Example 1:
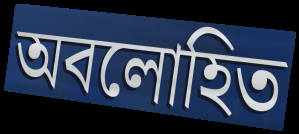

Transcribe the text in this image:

অবলোহিত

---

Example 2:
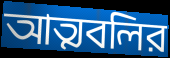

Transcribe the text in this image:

আত্মবলির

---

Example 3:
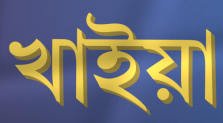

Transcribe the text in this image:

খাইয়া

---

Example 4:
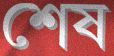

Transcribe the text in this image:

শেষ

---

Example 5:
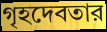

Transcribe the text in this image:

গৃহদেবতার